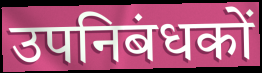
उपनिबंधकों